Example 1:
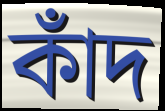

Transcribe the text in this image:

কাঁদ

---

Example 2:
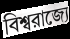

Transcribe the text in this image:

বিশ্বরাজ্যে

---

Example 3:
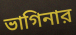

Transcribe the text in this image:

ভাগিনার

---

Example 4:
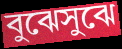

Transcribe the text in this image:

বুঝেসুঝে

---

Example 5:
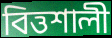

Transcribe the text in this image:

বিত্তশালী